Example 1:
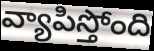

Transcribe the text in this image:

వ్యాపిస్తోంది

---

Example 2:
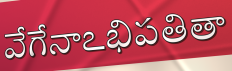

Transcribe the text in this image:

వేగేనాఽభిపతితా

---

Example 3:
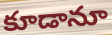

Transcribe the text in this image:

కూడానూ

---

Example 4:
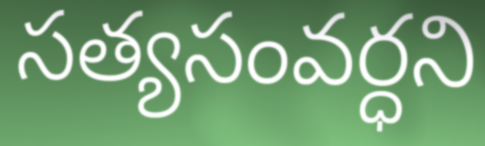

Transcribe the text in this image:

సత్యసంవర్ధని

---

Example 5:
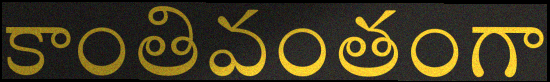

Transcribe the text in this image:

కాంతివంతంగా